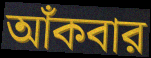
আঁকবার